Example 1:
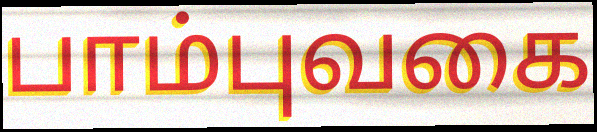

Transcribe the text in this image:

பாம்புவகை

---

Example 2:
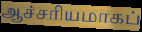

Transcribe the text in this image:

ஆச்சரியமாகப்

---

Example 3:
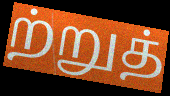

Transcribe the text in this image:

ற்றுத்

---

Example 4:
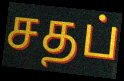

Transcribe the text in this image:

சதப்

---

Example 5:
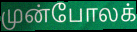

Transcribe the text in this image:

முன்போலக்